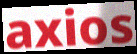
axios